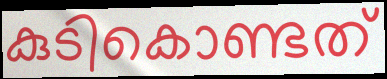
കുടികൊണ്ടത്